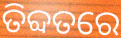
ତିବ୍ଦତରେ